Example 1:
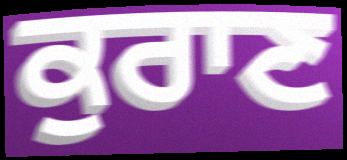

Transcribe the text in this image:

ਕੁਰਾਣ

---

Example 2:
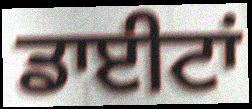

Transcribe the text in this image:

ਡਾਈਟਾਂ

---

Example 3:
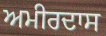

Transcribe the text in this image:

ਅਮੀਰਦਾਸ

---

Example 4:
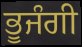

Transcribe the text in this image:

ਭੂਜੰਗੀ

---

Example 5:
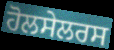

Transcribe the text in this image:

ਹੋਲਸੇਲਰਸ